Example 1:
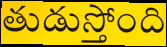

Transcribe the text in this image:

తుడుస్తోంది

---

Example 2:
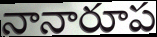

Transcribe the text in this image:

నానారూప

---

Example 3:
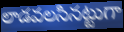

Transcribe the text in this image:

లాడవలసినట్టుగా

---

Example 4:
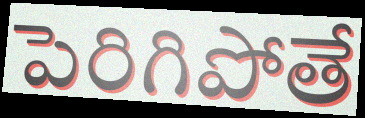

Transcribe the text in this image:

పెరిగిపోతే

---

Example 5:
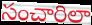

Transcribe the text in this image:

సంచారిలా